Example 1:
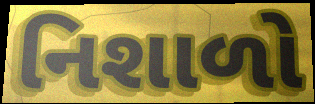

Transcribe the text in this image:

નિશાળો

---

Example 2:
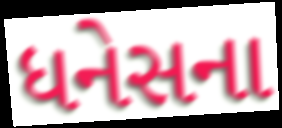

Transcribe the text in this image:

ધનેસના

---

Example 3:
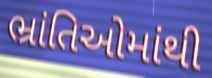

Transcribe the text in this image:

ભ્રાંતિઓમાંથી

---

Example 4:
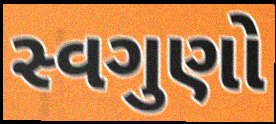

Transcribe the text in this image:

સ્વગુણો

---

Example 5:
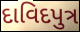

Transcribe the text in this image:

દાવિદપુત્ર